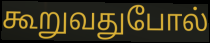
கூறுவதுபோல்